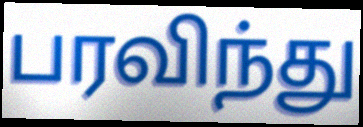
பரவிந்து